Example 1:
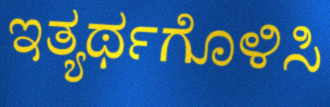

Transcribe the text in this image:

ಇತ್ಯರ್ಥಗೊಳಿಸಿ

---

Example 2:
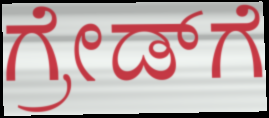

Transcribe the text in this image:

ಗ್ರೇಡ್‌ಗೆ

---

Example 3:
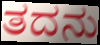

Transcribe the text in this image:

ತದನು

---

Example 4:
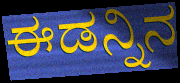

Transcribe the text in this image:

ಈಡನ್ನಿನ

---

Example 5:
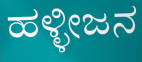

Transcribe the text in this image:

ಹಳ್ಳೀಜನ